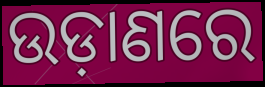
ଉଡ଼ାଣରେ